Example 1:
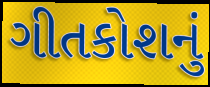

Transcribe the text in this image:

ગીતકોશનું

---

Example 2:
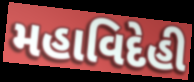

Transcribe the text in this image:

મહાવિદેહી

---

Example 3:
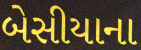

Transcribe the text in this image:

બેસીયાના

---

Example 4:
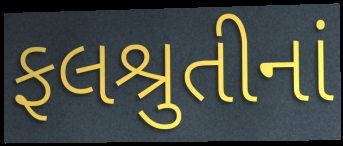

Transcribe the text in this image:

ફલશ્રુતીનાં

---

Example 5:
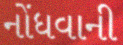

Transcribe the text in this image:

નોંધવાની